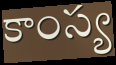
కాంస్య